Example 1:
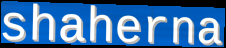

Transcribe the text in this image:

shaherna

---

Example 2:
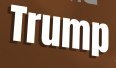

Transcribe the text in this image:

Trump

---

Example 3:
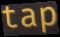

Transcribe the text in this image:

tap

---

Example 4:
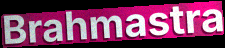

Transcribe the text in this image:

Brahmastra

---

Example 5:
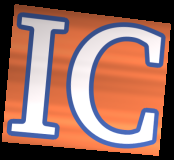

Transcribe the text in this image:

IC